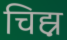
चिह्न